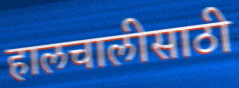
हालचालीसाठी